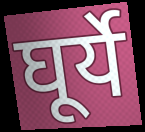
घूर्ये